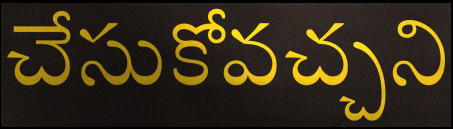
చేసుకోవచ్చని